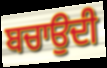
ਬਚਾਉਦੀ